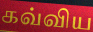
கவ்விய